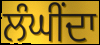
ਲੰਘੀਂਦਾ